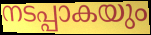
നടപ്പാകയും